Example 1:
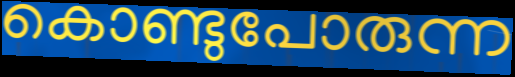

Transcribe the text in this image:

കൊണ്ടുപോരുന്ന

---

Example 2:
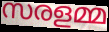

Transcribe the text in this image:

സരളമ്മ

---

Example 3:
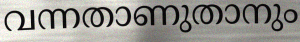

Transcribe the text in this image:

വന്നതാണുതാനും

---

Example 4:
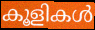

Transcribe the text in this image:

കൂളികൾ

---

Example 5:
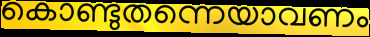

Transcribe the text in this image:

കൊണ്ടുതന്നെയാവണം